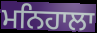
ਮਨਿਹਾਲਾ